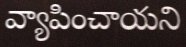
వ్యాపించాయని